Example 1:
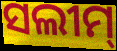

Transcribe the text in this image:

ସଲୀମ୍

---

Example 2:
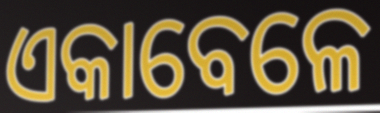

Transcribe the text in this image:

ଏକାବେଳେ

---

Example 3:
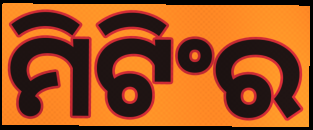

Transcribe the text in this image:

ମିଟିଂର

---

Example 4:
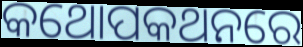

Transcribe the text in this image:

କଥୋପକଥନରେ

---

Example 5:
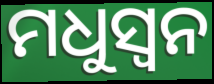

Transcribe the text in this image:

ମଧୁସ୍ୱନ